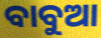
ବାବୁଆ